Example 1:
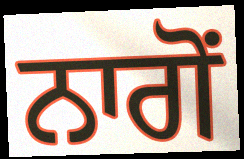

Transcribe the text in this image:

ਨਾਗੋਂ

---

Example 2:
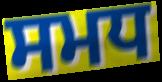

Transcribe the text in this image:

ਸਮਧ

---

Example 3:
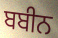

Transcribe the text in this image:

ਬਬੀਨ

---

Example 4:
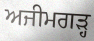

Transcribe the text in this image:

ਅਜੀਮਗੜ੍ਹ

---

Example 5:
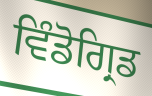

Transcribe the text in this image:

ਵਿੰਡੋਗ੍ਰਿਡ